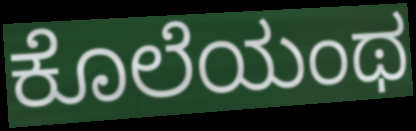
ಕೊಲೆಯಂಥ